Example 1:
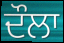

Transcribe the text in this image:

ਦੌਲਾ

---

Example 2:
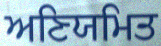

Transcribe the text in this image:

ਅਣਿਯਮਿਤ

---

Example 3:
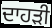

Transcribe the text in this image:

ਦਾਹੜੀ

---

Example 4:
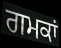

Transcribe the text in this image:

ਗਮਕਾਂ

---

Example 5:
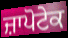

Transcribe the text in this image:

ਜ਼ਾਪੋਟੇਕ